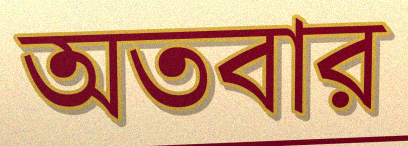
অতবার